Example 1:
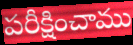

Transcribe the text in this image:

పరీక్షించాము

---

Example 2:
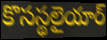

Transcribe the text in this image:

కొసస్థలైయార్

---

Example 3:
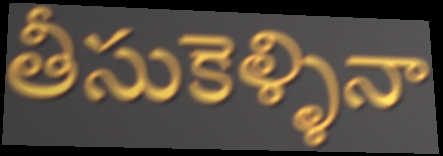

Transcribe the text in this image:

తీసుకెళ్ళినా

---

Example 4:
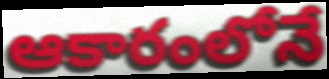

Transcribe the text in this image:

ఆకారంలోనే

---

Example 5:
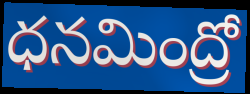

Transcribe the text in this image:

ధనమింద్రో